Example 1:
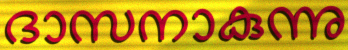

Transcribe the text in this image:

ദാസനാകുന്നു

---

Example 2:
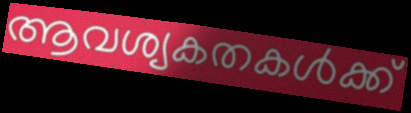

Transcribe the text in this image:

ആവശ്യകതകൾക്ക്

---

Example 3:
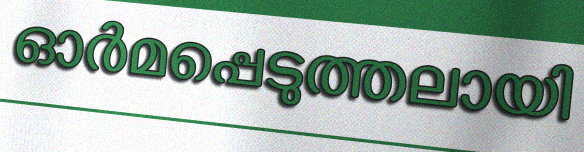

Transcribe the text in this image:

ഓർമപ്പെടുത്തലായി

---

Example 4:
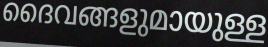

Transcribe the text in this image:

ദൈവങ്ങളുമായുള്ള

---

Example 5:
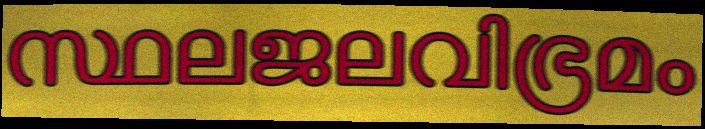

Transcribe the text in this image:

സ്ഥലജലവിഭ്രമം